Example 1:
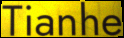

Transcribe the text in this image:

Tianhe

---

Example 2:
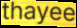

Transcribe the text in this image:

thayee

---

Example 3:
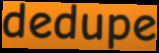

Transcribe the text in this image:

dedupe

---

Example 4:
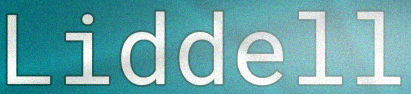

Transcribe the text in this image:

Liddell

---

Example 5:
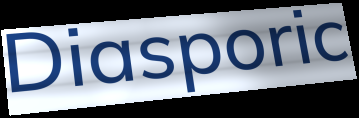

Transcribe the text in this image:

Diasporic